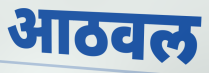
आठवल